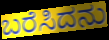
ಬರೆಸಿದನು